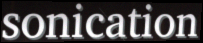
sonication